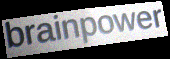
brainpower